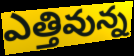
ఎత్తివున్న